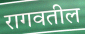
रागवतील